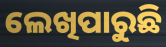
ଲେଖିପାରୁଛି